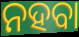
ନହବା